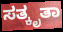
ಸತ್ಕೃತಾ